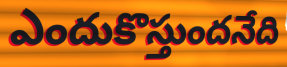
ఎందుకొస్తుందనేది